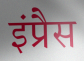
इंप्रैस